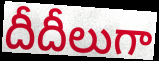
దీదీలుగా